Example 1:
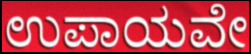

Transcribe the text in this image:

ಉಪಾಯವೇ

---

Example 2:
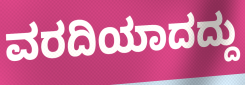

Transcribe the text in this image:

ವರದಿಯಾದದ್ದು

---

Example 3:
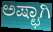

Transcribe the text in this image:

ಅಷ್ಟಾಗಿ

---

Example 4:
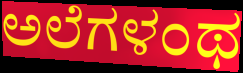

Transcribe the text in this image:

ಅಲೆಗಳಂಥ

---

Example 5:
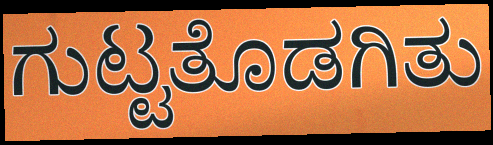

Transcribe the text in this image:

ಗುಟ್ಟತೊಡಗಿತು